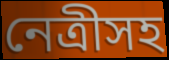
নেত্রীসহ